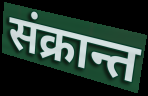
संक्रान्त